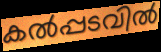
കൽപ്പടവിൽ